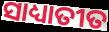
ସାଧ୍ୟାତୀତ